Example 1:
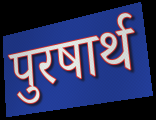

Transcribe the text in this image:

पुरषार्थ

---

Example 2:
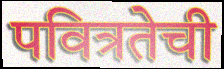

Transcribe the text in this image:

पवित्रतेची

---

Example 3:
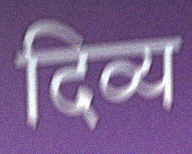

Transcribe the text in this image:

दिव्य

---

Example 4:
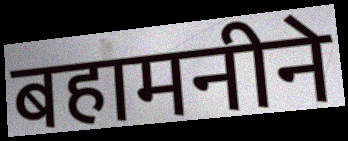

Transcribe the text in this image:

बहामनीने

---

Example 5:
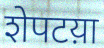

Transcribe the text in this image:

शेपटय़ा